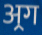
अ्रग